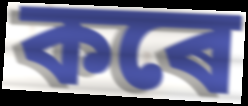
কৰে